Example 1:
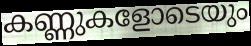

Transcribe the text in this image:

കണ്ണുകളോടെയും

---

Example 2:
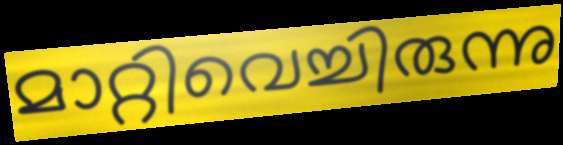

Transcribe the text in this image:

മാറ്റിവെച്ചിരുന്നു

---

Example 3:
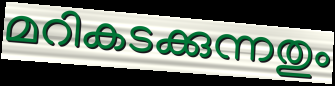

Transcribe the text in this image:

മറികടക്കുന്നതും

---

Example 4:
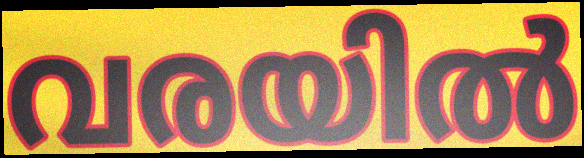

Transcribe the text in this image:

വരയിൽ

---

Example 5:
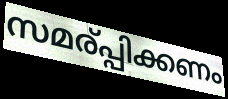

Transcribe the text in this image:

സമര്പ്പിക്കണം